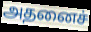
அதனைச்